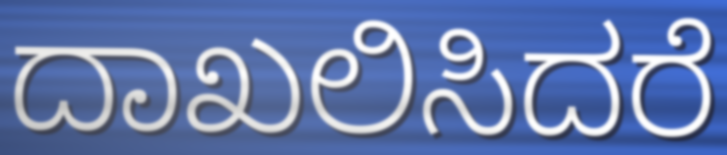
ದಾಖಲಿಸಿದರೆ